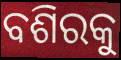
ବଶିରକୁ